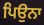
ਪਿਉਨਾ